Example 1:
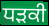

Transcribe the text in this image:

ਧੜਕੀ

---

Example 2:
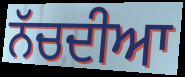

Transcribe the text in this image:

ਨੱਚਦੀਆ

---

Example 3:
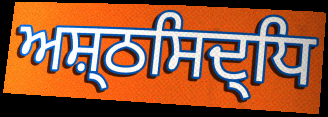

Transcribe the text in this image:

ਅਸ਼੍ਠਸਿਦ੍ਧਿ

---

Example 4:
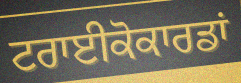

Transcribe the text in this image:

ਟਰਾਈਕੋਕਾਰਡਾਂ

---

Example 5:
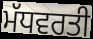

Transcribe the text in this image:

ਮੱਧਵਰਤੀ